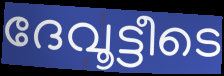
ദേവൂട്ടീടെ